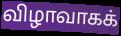
விழாவாகக்